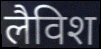
लैविश